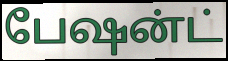
பேஷன்ட்